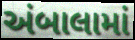
અંબાલામાં